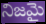
నిజమై